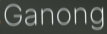
Ganong